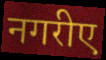
नगरीए